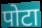
पोटा